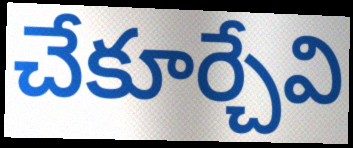
చేకూర్చేవి